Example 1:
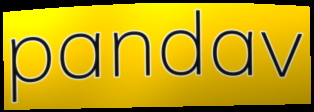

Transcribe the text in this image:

pandav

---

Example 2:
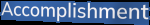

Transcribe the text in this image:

Accomplishment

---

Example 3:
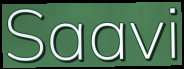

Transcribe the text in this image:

Saavi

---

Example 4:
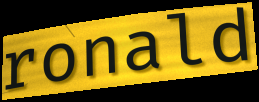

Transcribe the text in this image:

ronald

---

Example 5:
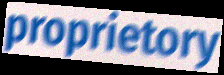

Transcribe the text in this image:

proprietory